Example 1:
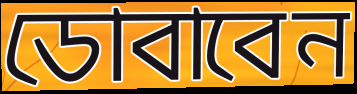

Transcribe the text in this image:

ডোবাবেন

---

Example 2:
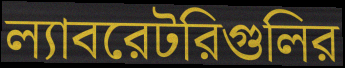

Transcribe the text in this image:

ল্যাবরেটরিগুলির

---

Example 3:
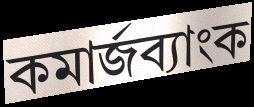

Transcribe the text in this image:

কমার্জব্যাংক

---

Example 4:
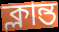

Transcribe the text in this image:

ক্লান্ত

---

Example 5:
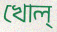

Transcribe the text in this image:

খোল্